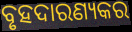
ବୃହଦାରଣ୍ୟକର